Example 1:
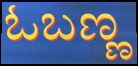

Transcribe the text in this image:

ಓಬಣ್ಣ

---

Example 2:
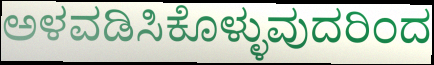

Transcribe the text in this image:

ಅಳವಡಿಸಿಕೊಳ್ಳುವುದರಿಂದ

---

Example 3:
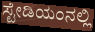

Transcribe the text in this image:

ಸ್ಟೇಡಿಯಂನಲ್ಲಿ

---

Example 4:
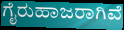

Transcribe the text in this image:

ಗೈರುಹಾಜರಾಗಿವೆ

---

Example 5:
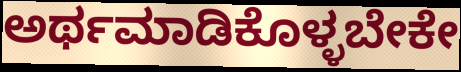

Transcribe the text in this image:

ಅರ್ಥಮಾಡಿಕೊಳ್ಳಬೇಕೇ